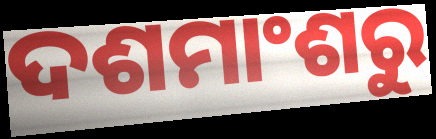
ଦଶମାଂଶରୁ